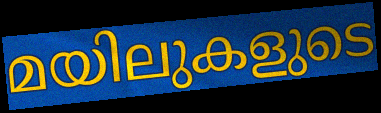
മയിലുകളുടെ